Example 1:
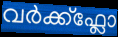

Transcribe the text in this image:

വർക്ക്ഫ്ലോ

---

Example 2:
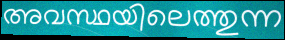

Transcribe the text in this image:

അവസ്ഥയിലെത്തുന്ന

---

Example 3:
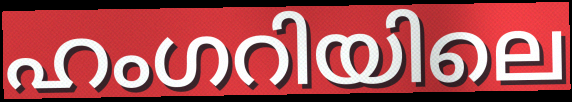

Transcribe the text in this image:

ഹംഗറിയിലെ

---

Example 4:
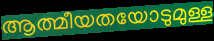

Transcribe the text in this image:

ആത്മീയതയോടുമുള്ള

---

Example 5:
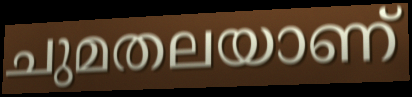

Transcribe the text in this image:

ചുമതലയാണ്